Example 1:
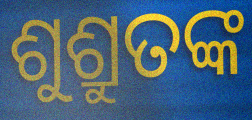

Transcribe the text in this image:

ଶୁଶ୍ରୁତଙ୍କ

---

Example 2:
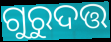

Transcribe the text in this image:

ଗୁରୁଦତ୍ତ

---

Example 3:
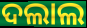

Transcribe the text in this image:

ଦଲାଲ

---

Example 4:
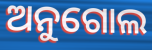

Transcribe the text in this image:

ଅନୁଗୋଲ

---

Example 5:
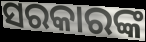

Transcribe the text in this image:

ସରକାରଙ୍କ